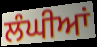
ਲੰਘੀਆਂ